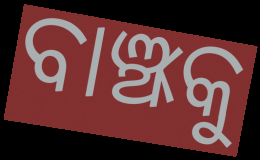
ବାଞ୍ଝକୁ